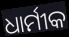
ଧାର୍ମୀକ